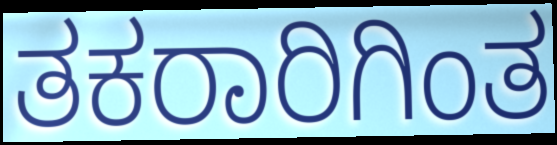
ತಕರಾರಿಗಿಂತ